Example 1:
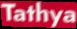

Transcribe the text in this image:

Tathya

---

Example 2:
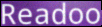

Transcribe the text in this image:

Readoo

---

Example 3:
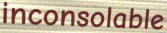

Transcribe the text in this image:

inconsolable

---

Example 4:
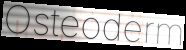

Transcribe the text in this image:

Osteoderm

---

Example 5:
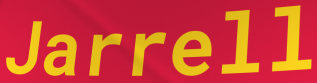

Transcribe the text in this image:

Jarrell